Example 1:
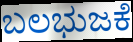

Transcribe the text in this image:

ಬಲಭುಜಕೆ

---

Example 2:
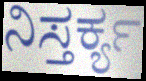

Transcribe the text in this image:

ನಿಸ್ತರ್ಕ್ಯ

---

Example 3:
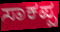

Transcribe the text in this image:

ಸಾಕಪ್ಪ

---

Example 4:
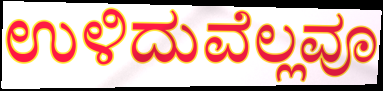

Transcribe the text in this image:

ಉಳಿದುವೆಲ್ಲವೂ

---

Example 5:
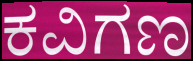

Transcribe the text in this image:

ಕವಿಗಣ